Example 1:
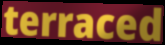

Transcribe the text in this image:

terraced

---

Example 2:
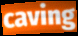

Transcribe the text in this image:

caving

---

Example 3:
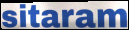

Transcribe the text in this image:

sitaram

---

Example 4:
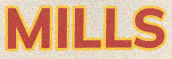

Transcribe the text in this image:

MILLS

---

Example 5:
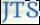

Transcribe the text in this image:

JTS